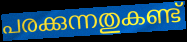
പരക്കുന്നതുകണ്ട്